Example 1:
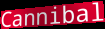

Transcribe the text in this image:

Cannibal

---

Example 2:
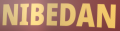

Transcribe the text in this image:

NIBEDAN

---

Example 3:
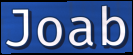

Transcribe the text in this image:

Joab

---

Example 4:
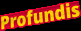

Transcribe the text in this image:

Profundis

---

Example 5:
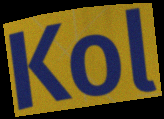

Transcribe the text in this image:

Kol